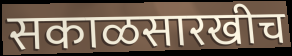
सकाळसारखीच